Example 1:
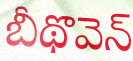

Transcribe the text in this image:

బీథొవెన్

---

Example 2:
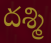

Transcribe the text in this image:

దశ్మి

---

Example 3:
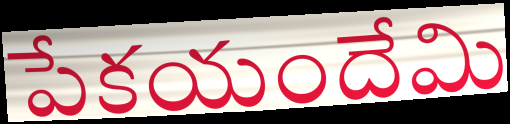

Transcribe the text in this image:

పేకయందేమి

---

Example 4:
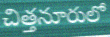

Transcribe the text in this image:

చిత్తనూరులో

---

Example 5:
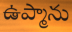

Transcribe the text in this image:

ఉప్మాను